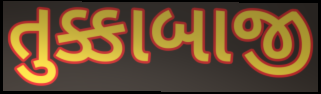
તુક્કાબાજી